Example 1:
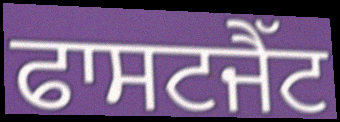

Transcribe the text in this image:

ਫਾਸਟਜੈੱਟ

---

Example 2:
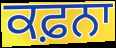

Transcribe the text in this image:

ਕਫ਼ਨਾ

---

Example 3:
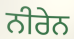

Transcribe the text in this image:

ਨੀਰੇਨ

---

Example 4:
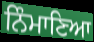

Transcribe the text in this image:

ਨਿੰਮਾਣਿਆ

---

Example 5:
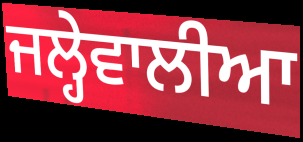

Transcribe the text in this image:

ਜਲ੍ਹੇਵਾਲੀਆ